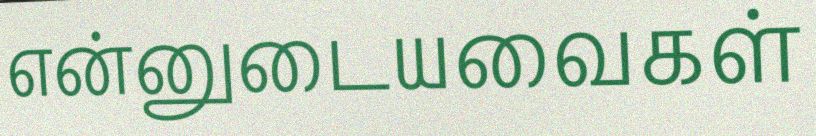
என்னுடையவைகள்